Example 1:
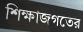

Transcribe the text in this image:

শিক্ষাজগতের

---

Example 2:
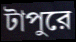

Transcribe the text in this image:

টাপুরে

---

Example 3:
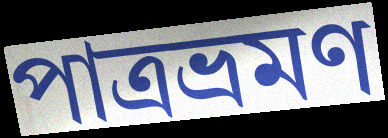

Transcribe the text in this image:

পাত্রভ্রমণ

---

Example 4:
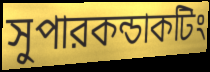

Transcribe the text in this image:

সুপারকন্ডাকটিং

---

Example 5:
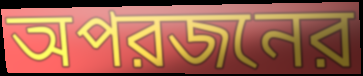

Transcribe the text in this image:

অপরজনের